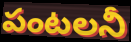
పంటలనీ